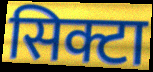
सिक्टा